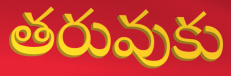
తరువుకు